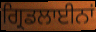
ਗ੍ਰਿਡਲਾਈਨਾਂ